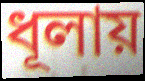
ধূলায়